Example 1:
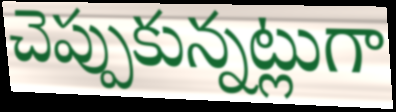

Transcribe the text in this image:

చెప్పుకున్నట్లుగా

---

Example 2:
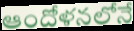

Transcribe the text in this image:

ఆందోళనలోనే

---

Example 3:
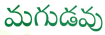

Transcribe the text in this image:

మగుడవు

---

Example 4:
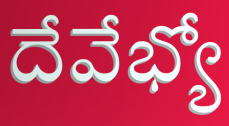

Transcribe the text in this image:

దేవేభ్యో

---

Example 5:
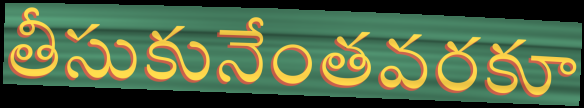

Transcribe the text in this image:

తీసుకునేంతవరకూ